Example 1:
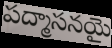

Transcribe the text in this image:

పద్మాసనయై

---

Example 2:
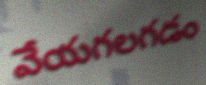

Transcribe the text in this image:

వేయగలగడం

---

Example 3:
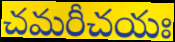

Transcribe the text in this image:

చమరీచయః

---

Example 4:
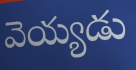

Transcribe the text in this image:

వెయ్యడు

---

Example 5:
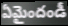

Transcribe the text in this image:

ఏమైందండీ